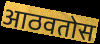
आठवतोस